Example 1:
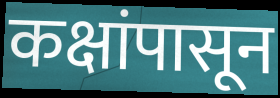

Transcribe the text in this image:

कक्षांपासून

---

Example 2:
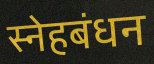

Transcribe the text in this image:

स्नेहबंधन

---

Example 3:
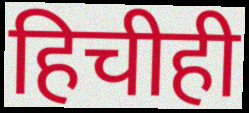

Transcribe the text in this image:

हिचीही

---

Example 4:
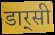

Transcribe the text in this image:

डार्सी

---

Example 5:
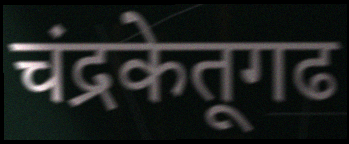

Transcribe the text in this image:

चंद्रकेतूगढ